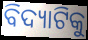
ବିଦ୍ୟାଟିକୁ